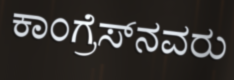
ಕಾಂಗ್ರೆಸ್‌ನವರು